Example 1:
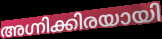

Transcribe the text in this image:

അഗ്നിക്കിരയായി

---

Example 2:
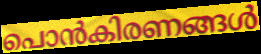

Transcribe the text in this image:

പൊൻകിരണങ്ങൾ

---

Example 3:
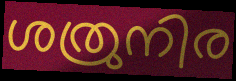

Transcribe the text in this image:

ശത്രുനിര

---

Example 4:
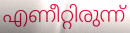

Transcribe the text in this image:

എണീറ്റിരുന്ന്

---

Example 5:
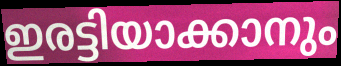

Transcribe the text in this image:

ഇരട്ടിയാക്കാനും